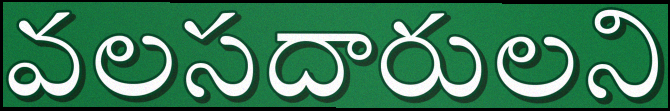
వలసదారులని